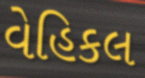
વેહિકલ